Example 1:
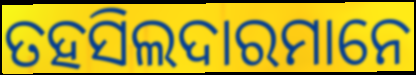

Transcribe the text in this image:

ତହସିଲଦାରମାନେ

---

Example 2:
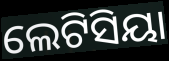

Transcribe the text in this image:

ଲେଟିସିୟା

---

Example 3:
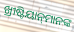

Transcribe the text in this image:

ଖ୍ରୀଷ୍ଟିୟାନ୍‌ମାନଙ୍କ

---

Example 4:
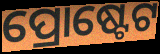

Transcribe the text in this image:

ପ୍ରୋଷ୍ଟେଟ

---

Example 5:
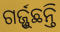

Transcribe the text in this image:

ଗର୍ଜ୍ଜୁଛନ୍ତି